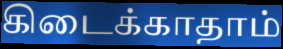
கிடைக்காதாம்